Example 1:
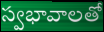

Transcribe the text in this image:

స్వభావాలతో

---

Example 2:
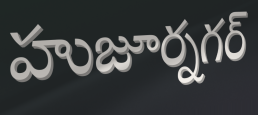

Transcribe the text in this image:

హుజూర్నగర్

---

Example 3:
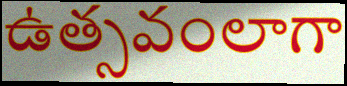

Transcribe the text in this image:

ఉత్సవంలాగా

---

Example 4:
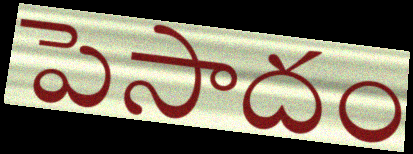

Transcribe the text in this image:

పెసాదం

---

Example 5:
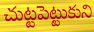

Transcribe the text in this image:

చుట్టపెట్టుకుని